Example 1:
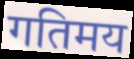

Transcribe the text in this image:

गतिमय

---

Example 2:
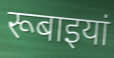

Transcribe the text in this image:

रूबाइयां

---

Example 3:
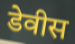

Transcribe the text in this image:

डेवीस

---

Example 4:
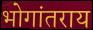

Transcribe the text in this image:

भोगांतराय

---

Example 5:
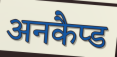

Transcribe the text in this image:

अनकैप्ड